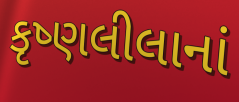
કૃષ્ણલીલાનાં